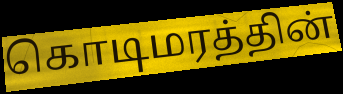
கொடிமரத்தின்